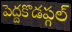
పెద్దకొడప్గల్